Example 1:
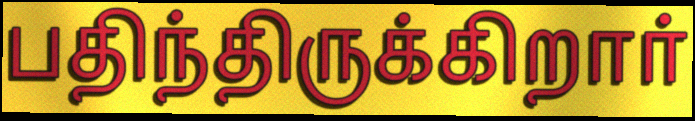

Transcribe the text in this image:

பதிந்திருக்கிறார்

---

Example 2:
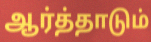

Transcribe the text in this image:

ஆர்த்தாடும்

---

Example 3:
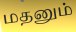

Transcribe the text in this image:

மதனும்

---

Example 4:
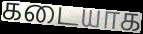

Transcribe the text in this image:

கடையாக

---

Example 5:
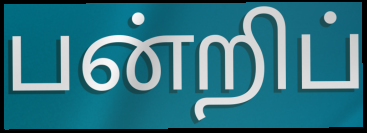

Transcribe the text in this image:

பன்றிப்